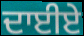
ਦਾਈਏ